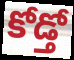
కోడ్తో